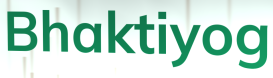
Bhaktiyog